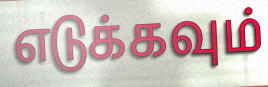
எடுக்கவும்